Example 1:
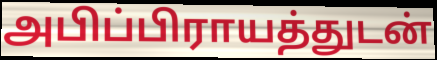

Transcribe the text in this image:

அபிப்பிராயத்துடன்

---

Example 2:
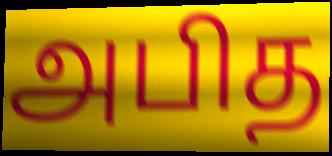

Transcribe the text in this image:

அபித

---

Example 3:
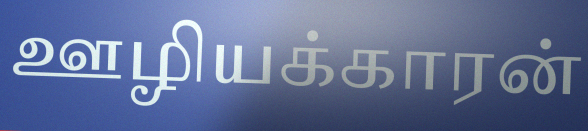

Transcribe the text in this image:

ஊழியக்காரன்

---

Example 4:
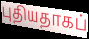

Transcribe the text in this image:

புதியதாகப்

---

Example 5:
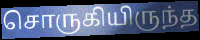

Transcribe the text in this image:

சொருகியிருந்த